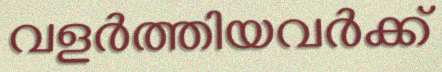
വളർത്തിയവർക്ക്